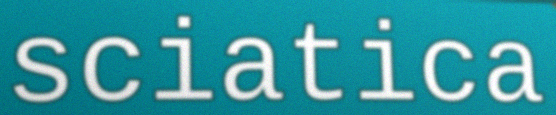
sciatica